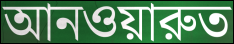
আনওয়ারুত